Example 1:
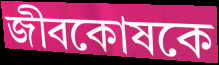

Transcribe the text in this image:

জীবকোষকে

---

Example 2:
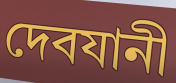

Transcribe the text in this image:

দেবযানী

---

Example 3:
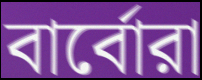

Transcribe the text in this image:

বার্বোরা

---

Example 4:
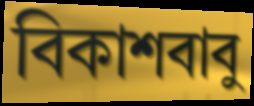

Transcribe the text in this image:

বিকাশবাবু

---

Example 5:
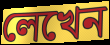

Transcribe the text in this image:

লেখেন